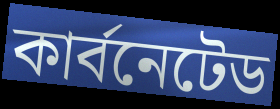
কার্বনেটেড